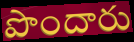
పొందారు